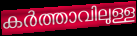
കർത്താവിലുള്ള